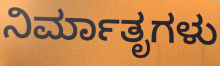
ನಿರ್ಮಾತೃಗಳು